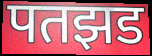
पतझड